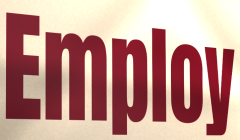
Employ